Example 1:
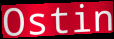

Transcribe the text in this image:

Ostin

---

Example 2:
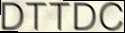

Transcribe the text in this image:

DTTDC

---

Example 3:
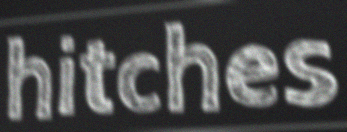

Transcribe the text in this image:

hitches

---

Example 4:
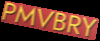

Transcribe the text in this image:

PMVBRY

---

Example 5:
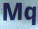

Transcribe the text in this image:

Mq